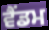
ਵੈਂਡਮ